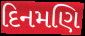
દિનમણિ